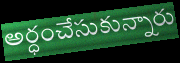
అర్ధంచేసుకున్నారు